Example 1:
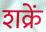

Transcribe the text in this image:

शक्रें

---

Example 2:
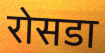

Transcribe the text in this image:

रोसडा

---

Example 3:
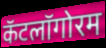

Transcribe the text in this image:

कॅटलॉगोरम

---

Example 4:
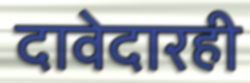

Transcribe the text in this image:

दावेदारही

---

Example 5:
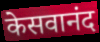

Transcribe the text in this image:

केसवानंद